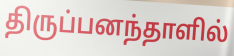
திருப்பனந்தாளில்